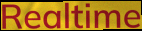
Realtime